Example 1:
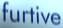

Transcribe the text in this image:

furtive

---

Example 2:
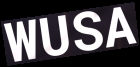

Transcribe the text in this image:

WUSA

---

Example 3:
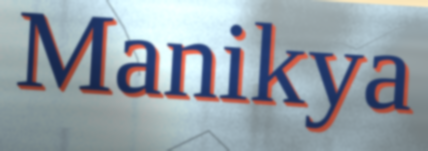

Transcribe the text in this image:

Manikya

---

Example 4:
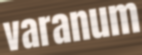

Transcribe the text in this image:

varanum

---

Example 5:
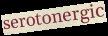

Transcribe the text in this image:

serotonergic